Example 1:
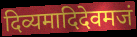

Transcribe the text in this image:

दिव्यमादिदेवमजं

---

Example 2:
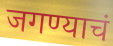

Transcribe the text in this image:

जगण्याचं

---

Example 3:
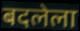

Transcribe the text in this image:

बदलेला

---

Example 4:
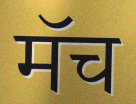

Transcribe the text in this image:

मॅच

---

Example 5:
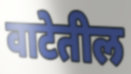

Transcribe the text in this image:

वाटेतील